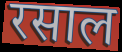
रसाल